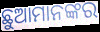
ଛୁଆମାନଙ୍କର